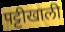
पट्टीखाली